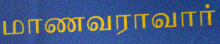
மாணவராவார்